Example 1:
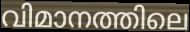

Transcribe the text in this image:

വിമാനത്തിലെ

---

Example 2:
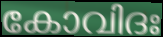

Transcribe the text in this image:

കോവിദഃ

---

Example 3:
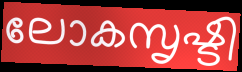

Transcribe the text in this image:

ലോകസൃഷ്ടി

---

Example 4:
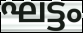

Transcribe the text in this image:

ഘട്ടം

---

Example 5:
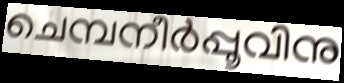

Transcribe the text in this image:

ചെമ്പനീർപ്പൂവിനു